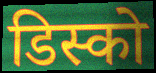
डिस्को